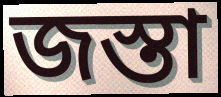
জস্তা